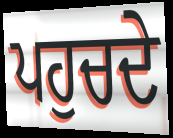
ਪਹੁਚਦੇ